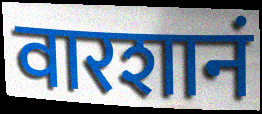
वारशानं